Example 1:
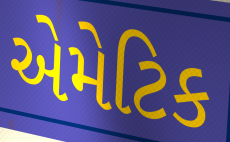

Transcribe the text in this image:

એમેટિક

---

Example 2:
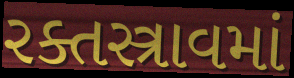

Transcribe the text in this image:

રક્તસ્ત્રાવમાં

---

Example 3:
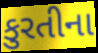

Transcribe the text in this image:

કુરતીના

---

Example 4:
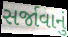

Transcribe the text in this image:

સર્જાવાનું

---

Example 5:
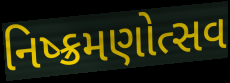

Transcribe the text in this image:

નિષ્ક્રમણોત્સવ